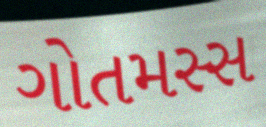
ગોતમસ્સ